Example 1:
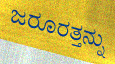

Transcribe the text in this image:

ಜರೂರತ್ತನ್ನು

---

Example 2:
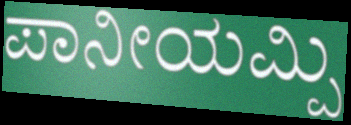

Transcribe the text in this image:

ಪಾನೀಯಮ್ಪಿ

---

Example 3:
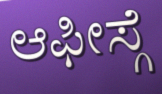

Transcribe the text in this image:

ಆಫೀಸ್ಗೆ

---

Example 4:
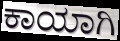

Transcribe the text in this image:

ಕಾಯಾಗಿ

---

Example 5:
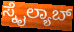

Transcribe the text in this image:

ಸ್ಕೈಲ್ಯಾಬ್